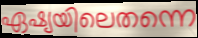
ഏഷ്യയിലെതന്നെ